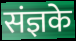
संज्ञके